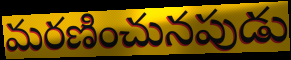
మరణించునపుడు